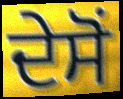
ਦੇਸੋਂ